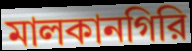
মালকানগিরি